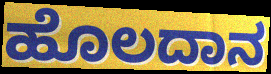
ಹೊಲದಾನ